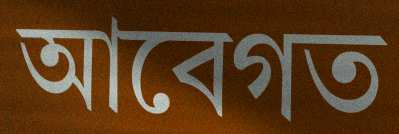
আবেগত